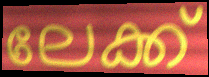
ലേക്ക്